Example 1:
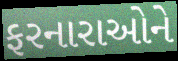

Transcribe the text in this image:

ફરનારાઓને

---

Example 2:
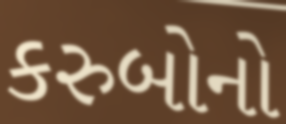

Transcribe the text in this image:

કરુબોનો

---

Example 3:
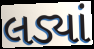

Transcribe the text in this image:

લડ્યાં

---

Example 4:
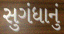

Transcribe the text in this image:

સુગંધાનું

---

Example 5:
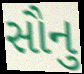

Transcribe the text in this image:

સૌનુ